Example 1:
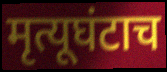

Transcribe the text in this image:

मृत्यूघंटाच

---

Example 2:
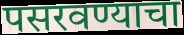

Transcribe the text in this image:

पसरवण्याचा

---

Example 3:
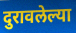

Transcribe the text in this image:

दुरावलेल्या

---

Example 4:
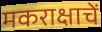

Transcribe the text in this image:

मकराक्षाचें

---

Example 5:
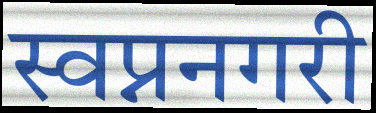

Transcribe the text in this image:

स्वप्ननगरी